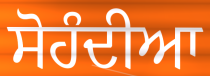
ਸੋਹੰਦੀਆ